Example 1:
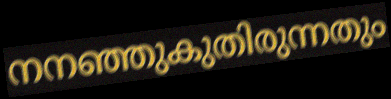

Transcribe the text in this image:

നനഞ്ഞുകുതിരുന്നതും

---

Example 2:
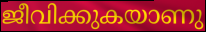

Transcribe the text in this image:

ജീവിക്കുകയാണു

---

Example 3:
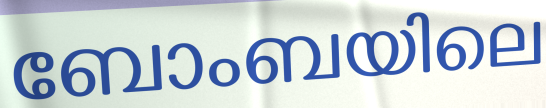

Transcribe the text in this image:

ബോംബയിലെ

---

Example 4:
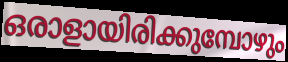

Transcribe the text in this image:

ഒരാളായിരിക്കുമ്പോഴും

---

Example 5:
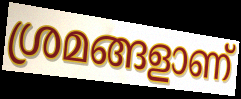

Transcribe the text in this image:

ശ്രമങ്ങളാണ്